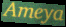
Ameya